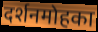
दर्शनमोहका